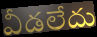
వీడలేదు